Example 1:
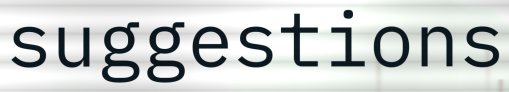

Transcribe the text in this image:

suggestions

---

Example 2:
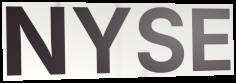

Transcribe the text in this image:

NYSE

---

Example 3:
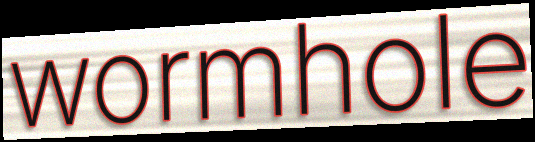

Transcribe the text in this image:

wormhole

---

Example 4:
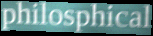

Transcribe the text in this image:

philosphical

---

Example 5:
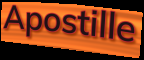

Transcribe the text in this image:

Apostille